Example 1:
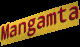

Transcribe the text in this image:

Mangamta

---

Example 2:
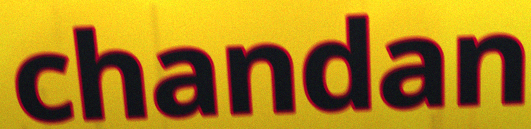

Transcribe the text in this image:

chandan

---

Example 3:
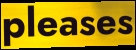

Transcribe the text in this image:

pleases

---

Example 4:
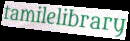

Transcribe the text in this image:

tamilelibrary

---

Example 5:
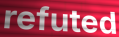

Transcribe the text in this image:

refuted